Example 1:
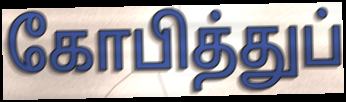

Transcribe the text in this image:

கோபித்துப்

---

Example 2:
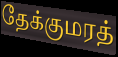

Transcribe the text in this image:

தேக்குமரத்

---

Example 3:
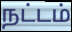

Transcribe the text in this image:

நட்டம்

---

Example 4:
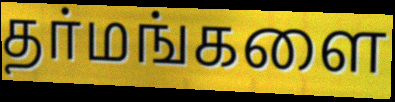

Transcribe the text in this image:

தர்மங்களை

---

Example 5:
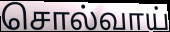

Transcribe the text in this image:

சொல்வாய்